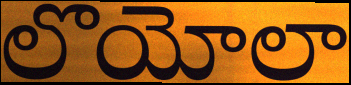
లొయోలా